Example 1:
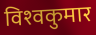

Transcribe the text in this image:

विश्वकुमार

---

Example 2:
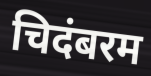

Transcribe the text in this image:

चिदंबरम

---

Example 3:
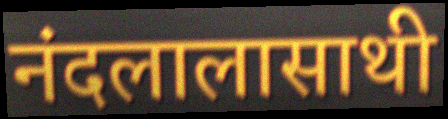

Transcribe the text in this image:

नंदलालासाथी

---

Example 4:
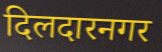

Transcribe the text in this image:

दिलदारनगर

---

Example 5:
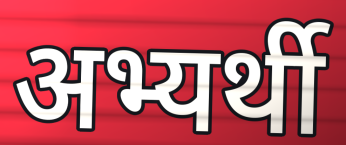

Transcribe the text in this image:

अभ्यर्थी